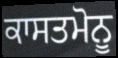
ਕਾਸਤਮੋਨੂ